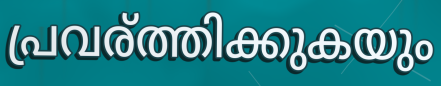
പ്രവര്ത്തിക്കുകയും